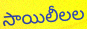
సాయిలీలల